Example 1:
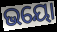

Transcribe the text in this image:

ଭୟୋ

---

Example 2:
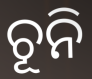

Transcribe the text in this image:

ଚୂନି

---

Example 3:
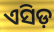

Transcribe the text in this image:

ଏସିଡ଼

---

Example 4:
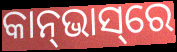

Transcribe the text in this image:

କାନ୍‌ଭାସ୍‌ରେ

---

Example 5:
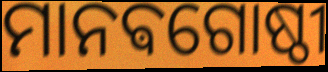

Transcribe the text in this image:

ମାନଵଗୋଷ୍ଠୀ